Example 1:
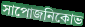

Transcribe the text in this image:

সাপোজনিকোভ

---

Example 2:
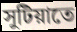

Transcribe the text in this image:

সুটিয়াতে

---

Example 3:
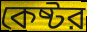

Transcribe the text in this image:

কেষ্টর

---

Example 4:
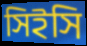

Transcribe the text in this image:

সিইসি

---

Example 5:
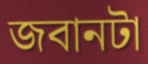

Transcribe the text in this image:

জবানটা